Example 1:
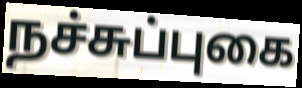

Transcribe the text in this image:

நச்சுப்புகை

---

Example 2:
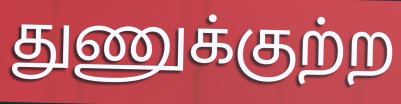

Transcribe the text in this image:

துணுக்குற்ற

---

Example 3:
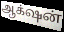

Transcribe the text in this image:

ஆக்‌ஷன்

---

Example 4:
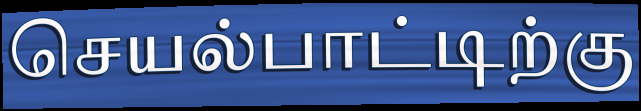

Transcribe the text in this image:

செயல்பாட்டிற்கு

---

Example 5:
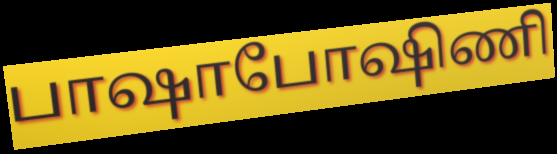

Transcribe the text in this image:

பாஷாபோஷிணி